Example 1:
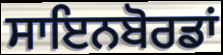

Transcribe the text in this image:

ਸਾਇਨਬੋਰਡਾਂ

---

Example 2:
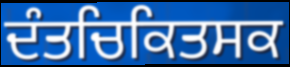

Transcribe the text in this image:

ਦੰਤਚਿਕਿਤਸਕ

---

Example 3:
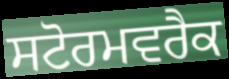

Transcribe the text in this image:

ਸਟੋਰਮਵਰੈਕ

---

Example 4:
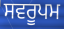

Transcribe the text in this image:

ਸਵਰੂਪਮ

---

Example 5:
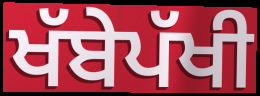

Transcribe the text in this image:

ਖੱਬੇਪੱਖੀ